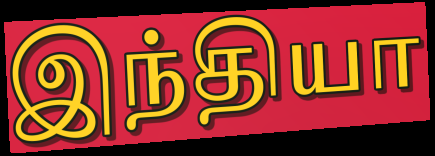
இந்தியா